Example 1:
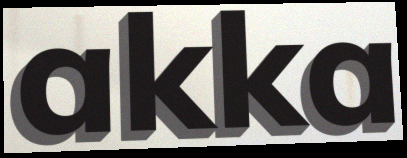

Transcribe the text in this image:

akka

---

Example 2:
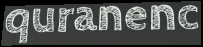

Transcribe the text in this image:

quranenc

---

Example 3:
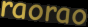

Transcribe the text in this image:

raorao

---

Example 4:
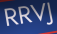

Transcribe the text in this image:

RRVJ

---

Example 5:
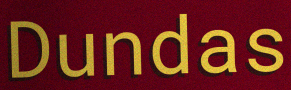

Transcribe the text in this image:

Dundas